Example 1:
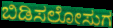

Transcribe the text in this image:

ಬಿಡಿಸಲೋಸುಗ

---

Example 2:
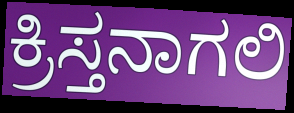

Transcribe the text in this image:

ಕ್ರಿಸ್ತನಾಗಲಿ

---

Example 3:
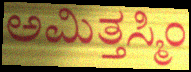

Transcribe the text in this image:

ಅಮಿತ್ತಸ್ಮಿಂ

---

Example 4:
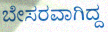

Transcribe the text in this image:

ಬೇಸರವಾಗಿದ್ದ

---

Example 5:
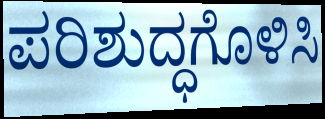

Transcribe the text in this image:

ಪರಿಶುದ್ಧಗೊಳಿಸಿ